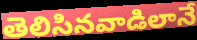
తెలిసినవాడిలానే